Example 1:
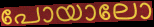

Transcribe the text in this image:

പോയാലോ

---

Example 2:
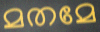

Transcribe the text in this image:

മതമേ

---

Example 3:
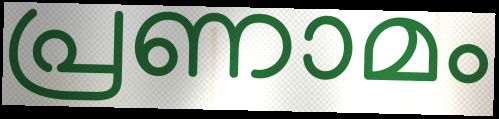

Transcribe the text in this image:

പ്രണാമം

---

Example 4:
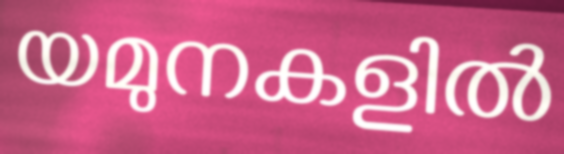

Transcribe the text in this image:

യമുനകളിൽ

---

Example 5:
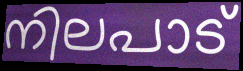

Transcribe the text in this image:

നിലപാട്